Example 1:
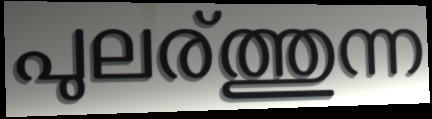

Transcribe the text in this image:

പുലര്ത്തുന്ന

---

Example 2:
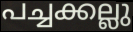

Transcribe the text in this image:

പച്ചക്കല്ലു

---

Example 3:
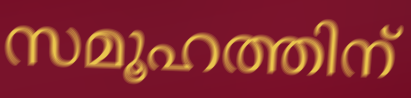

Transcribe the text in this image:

സമൂഹത്തിന്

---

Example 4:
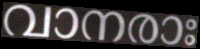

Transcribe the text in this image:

വാനരാഃ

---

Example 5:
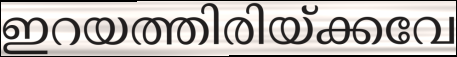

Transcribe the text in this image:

ഇറയത്തിരിയ്ക്കവേ